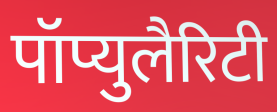
पॉप्युलैरिटी